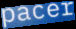
pacer